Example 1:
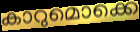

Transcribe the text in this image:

കാറുമൊക്കെ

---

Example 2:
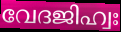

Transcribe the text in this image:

വേദജിഹ്വഃ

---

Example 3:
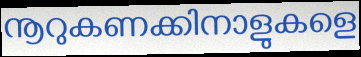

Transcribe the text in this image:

നൂറുകണക്കിനാളുകളെ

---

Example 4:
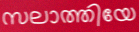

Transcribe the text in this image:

സലാത്തിയേ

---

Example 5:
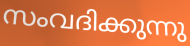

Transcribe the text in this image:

സംവദിക്കുന്നു